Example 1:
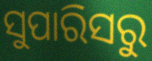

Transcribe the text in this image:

ସୁପାରିସରୁ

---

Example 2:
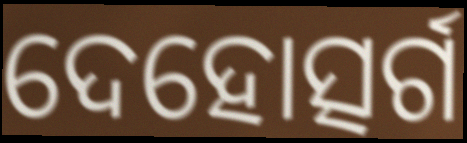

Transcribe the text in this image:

ଦେହୋତ୍ସର୍ଗ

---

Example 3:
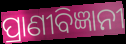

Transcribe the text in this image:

ପ୍ରାଣୀବିଜ୍ଞାନୀ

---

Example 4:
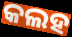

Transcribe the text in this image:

କଲହ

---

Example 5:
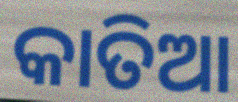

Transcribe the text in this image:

କାତିଆ